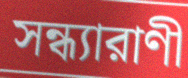
সন্ধ্যারাণী